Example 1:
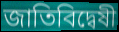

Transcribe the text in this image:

জাতিবিদ্বেষী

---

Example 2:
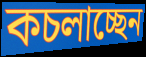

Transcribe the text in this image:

কচলাচ্ছেন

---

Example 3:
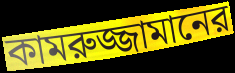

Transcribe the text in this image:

কামরুজ্জামানের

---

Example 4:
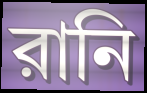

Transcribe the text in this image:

রানি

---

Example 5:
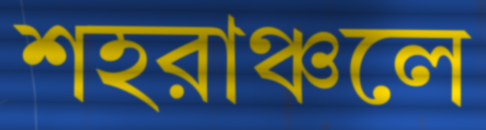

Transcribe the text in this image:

শহরাঞ্চলে